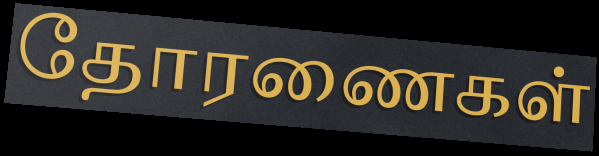
தோரணைகள்